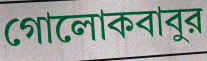
গোলোকবাবুর